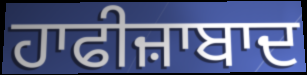
ਹਾਫੀਜ਼ਾਬਾਦ